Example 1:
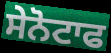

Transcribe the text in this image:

ਸੇਨੋਟਾਫ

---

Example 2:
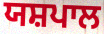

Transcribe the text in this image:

ਯਸ਼ਪਾਲ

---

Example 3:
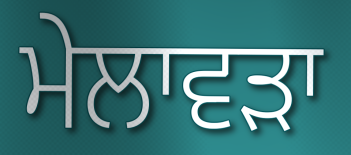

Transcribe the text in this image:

ਮੇਲਾਵੜਾ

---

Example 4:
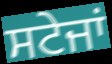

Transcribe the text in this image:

ਸਟੇਜਾਂ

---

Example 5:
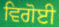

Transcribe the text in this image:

ਵਿਗੋਈ